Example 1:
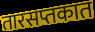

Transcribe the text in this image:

तारसप्तकात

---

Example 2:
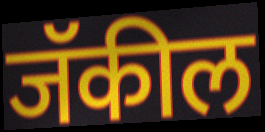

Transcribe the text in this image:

जॅकील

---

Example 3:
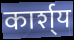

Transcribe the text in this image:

कार्श्य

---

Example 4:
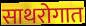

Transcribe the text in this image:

साथरोगात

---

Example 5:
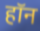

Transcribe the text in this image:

हॉन